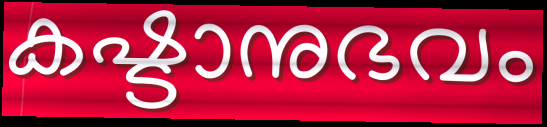
കഷ്ടാനുഭവം